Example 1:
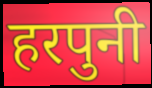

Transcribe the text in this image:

हरपुनी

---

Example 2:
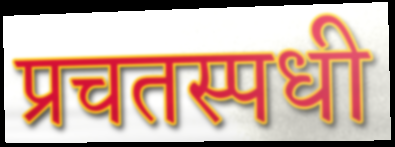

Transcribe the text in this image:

प्रचतस्पधी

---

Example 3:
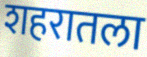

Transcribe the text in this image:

शहरातला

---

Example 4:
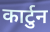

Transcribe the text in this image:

कार्टुन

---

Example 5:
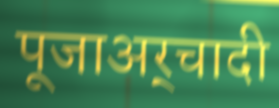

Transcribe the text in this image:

पूजाअर्चादी